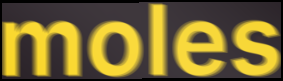
moles